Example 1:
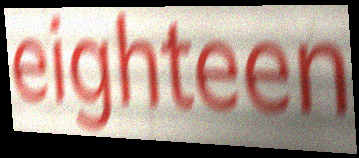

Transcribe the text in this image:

eighteen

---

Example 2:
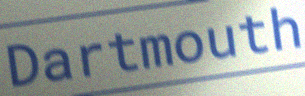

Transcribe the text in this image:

Dartmouth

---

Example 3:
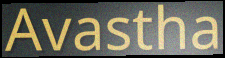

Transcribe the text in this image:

Avastha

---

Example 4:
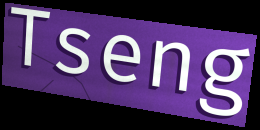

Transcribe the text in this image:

Tseng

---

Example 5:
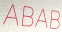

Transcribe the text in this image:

ABAB